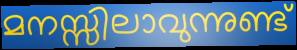
മനസ്സിലാവുന്നുണ്ട്